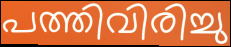
പത്തിവിരിച്ചു